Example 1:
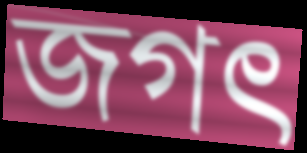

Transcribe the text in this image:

জগৎ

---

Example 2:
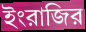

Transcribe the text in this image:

ইংরাজির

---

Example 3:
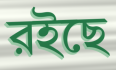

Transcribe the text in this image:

রইছে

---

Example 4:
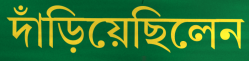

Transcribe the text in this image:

দাঁড়িয়েছিলেন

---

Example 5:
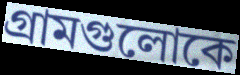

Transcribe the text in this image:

গ্রামগুলোকে